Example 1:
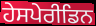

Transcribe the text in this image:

ਹੇਸਪੇਰੀਡਿਨ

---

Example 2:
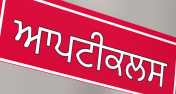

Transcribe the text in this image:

ਆਪਟੀਕਲਸ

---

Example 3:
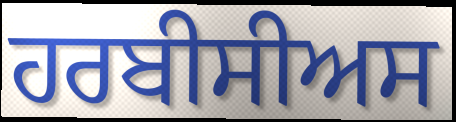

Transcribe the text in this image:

ਹਰਬੀਸੀਅਸ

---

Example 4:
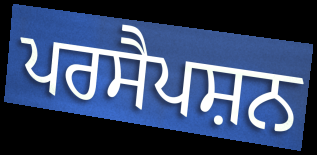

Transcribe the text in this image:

ਪਰਸੈਪਸ਼ਨ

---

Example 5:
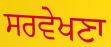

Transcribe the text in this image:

ਸਰਵੇਖਣਾ